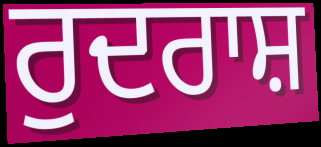
ਰੁਦਰਾਸ਼